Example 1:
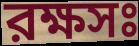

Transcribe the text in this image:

রক্ষসঃ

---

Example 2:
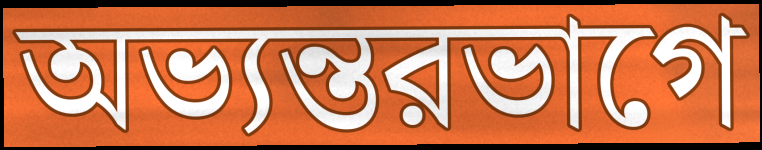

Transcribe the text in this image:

অভ্যন্তরভাগে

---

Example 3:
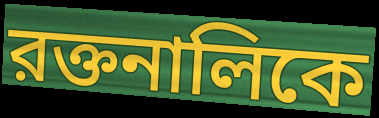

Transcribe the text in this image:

রক্তনালিকে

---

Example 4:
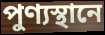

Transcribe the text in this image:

পুণ্যস্থানে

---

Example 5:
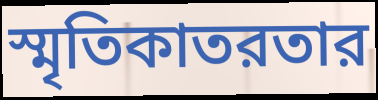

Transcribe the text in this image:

স্মৃতিকাতরতার